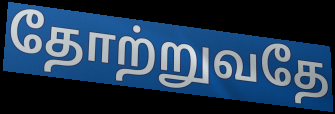
தோற்றுவதே